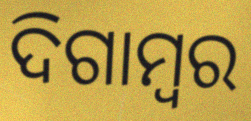
ଦିଗାମ୍ଵର